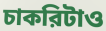
চাকরিটাও